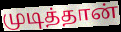
முடித்தான்